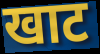
खाट